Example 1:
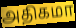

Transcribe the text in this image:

அதிகமா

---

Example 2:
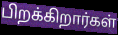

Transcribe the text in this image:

பிறக்கிறார்கள்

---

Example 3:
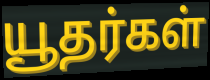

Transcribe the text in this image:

யூதர்கள்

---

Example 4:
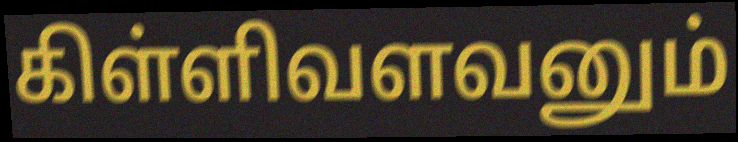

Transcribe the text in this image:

கிள்ளிவளவனும்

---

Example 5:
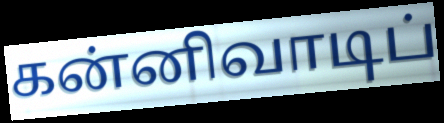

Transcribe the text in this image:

கன்னிவாடிப்